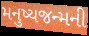
મનુષ્યજન્મની